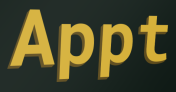
Appt